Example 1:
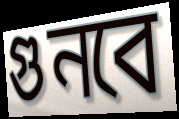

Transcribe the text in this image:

গুনবে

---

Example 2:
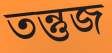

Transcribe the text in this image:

তন্তুজ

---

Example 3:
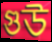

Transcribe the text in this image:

গুউ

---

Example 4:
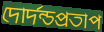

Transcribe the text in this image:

দোর্দন্ডপ্রতাপ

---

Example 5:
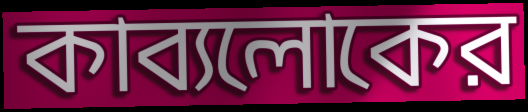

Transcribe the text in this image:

কাব্যলোকের